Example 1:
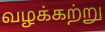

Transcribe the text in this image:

வழக்கற்று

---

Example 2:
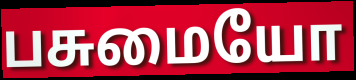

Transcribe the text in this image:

பசுமையோ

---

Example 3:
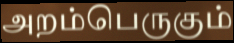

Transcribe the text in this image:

அறம்பெருகும்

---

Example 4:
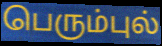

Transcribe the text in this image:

பெரும்புல்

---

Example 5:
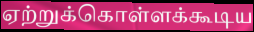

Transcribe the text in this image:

ஏற்றுக்கொள்ளக்கூடிய